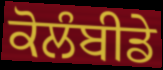
ਕੋਲੰਬੀਡੇ